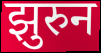
झुरुन